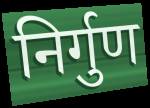
निर्गुण